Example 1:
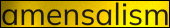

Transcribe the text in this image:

amensalism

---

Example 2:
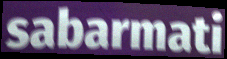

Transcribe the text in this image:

sabarmati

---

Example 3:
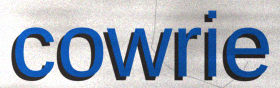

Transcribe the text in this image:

cowrie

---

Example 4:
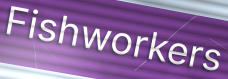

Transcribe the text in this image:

Fishworkers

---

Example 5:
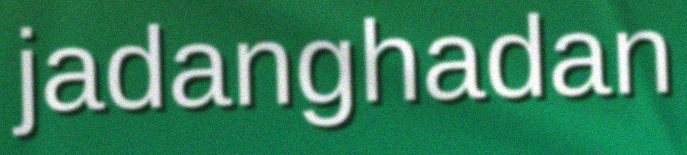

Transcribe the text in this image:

jadanghadan